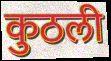
कुठली